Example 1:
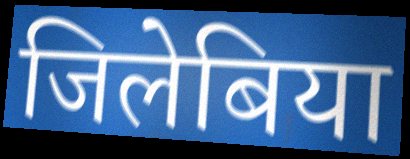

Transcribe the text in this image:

जिलेबिया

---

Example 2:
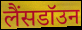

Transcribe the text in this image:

लैंसडॉउन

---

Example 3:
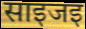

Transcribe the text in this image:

साइजइ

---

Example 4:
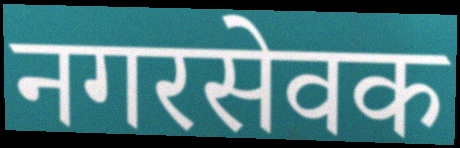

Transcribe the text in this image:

नगरसेवक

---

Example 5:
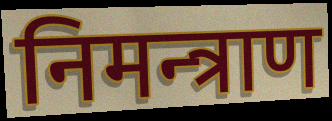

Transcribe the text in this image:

निमन्त्राण